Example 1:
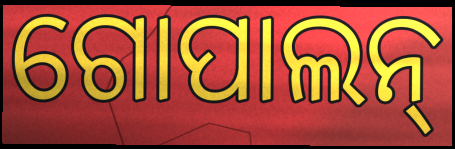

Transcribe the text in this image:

ଗୋପାଲନ୍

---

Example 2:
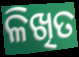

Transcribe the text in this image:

ଳିଖିତ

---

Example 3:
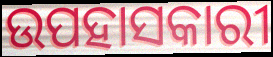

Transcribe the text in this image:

ଉପହାସକାରୀ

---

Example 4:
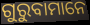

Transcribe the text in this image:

ଗୁରୁବାମାନେ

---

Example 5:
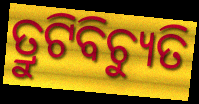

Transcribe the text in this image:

ତ୍ରୁଟିବିଚ୍ୟୁତି